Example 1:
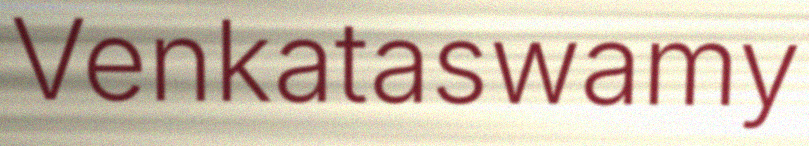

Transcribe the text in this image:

Venkataswamy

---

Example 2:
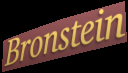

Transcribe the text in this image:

Bronstein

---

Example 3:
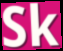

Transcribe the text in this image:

Sk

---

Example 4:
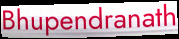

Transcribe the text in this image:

Bhupendranath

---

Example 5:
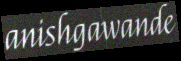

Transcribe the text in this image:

anishgawande